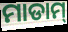
ମାଡାମ୍